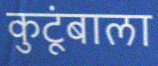
कुटूंबाला